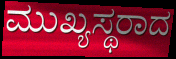
ಮುಖ್ಯಸ್ಥರಾದ